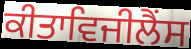
ਕੀਤਾਵਿਜੀਲੈਂਸ